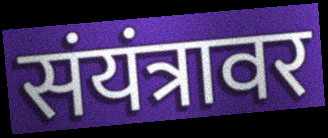
संयंत्रावर